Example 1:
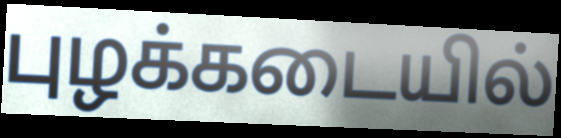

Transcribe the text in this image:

புழக்கடையில்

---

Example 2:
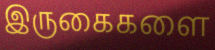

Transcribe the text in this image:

இருகைகளை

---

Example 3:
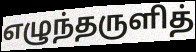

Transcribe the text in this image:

எழுந்தருளித்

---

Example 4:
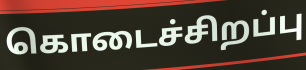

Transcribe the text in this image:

கொடைச்சிறப்பு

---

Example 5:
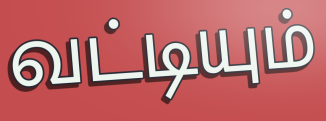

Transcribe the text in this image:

வட்டியும்